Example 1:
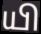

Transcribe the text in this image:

யி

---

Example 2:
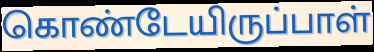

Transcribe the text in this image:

கொண்டேயிருப்பாள்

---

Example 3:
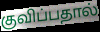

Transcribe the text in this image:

குவிப்பதால்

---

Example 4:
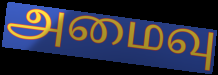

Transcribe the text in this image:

அமைவு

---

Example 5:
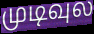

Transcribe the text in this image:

முடிவுல